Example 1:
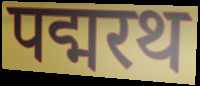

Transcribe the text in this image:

पद्मरथ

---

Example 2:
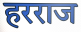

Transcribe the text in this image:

हरराज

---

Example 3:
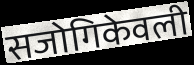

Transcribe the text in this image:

सजोगिकेवली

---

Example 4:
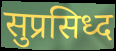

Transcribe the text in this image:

सुप्रसिध्द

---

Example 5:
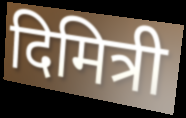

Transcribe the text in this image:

दिमित्री